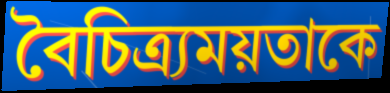
বৈচিত্র্যময়তাকে